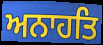
ਅਨਾਹਤਿ